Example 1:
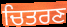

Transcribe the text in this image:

ਚਿਤਰਣ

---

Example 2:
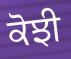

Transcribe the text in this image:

ਕੋਝੀ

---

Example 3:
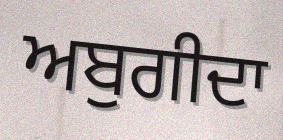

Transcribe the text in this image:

ਅਬੁਗੀਦਾ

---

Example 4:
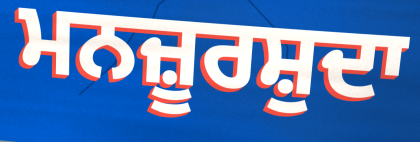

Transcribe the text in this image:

ਮਨਜ਼ੂਰਸ਼ੁਦਾ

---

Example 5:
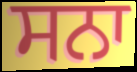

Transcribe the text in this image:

ਸਨਾ